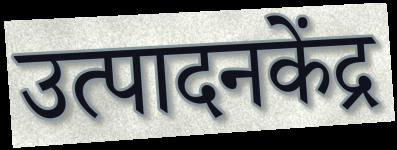
उत्पादनकेंद्र